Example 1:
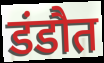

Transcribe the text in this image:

डंडौत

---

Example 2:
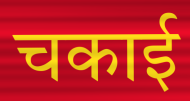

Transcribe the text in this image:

चकाई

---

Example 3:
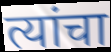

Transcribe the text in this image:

त्यांचा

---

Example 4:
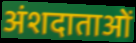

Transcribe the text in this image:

अंशदाताओं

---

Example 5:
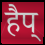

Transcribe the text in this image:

हैप्